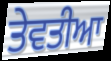
ਤੇਵਤੀਆ